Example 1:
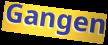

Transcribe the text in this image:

Gangen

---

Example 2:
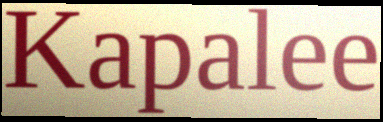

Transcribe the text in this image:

Kapalee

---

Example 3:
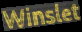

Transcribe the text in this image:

Winslet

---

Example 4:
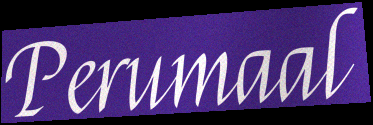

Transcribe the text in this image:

Perumaal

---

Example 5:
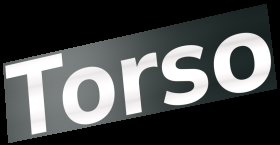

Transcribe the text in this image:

Torso